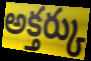
అక్తర్కు